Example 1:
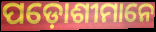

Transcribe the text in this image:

ପଡ଼ୋଶୀମାନେ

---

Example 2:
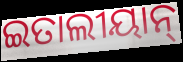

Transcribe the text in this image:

ଇତାଲୀୟାନ୍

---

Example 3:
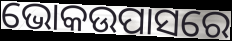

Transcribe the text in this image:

ଭୋକଉପାସରେ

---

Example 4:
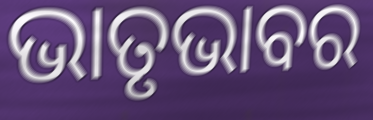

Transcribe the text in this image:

ଭାତୃଭାବର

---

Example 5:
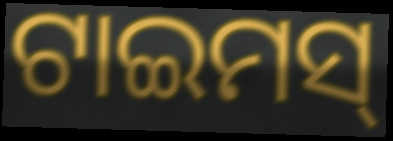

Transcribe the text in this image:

ଟାଇମସ୍